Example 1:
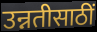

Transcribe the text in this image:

उन्नतीसाठीं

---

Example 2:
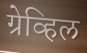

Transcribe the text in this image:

ग्रेव्हिल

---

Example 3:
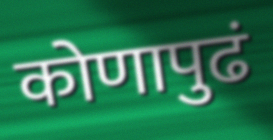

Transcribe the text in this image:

कोणापुढं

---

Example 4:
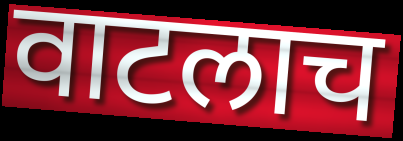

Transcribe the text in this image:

वाटलाच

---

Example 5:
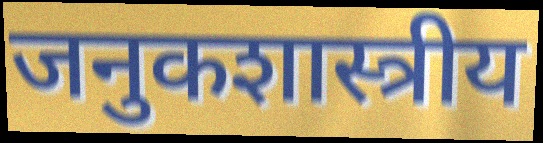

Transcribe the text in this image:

जनुकशास्त्रीय